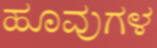
ಹೂವುಗಳ